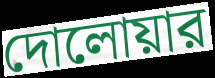
দোলোয়ার